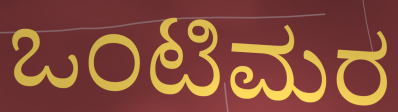
ಒಂಟಿಮರ